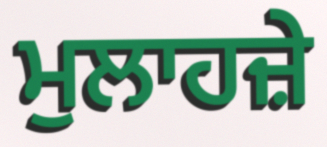
ਮੁਲਾਹਜ਼ੇ